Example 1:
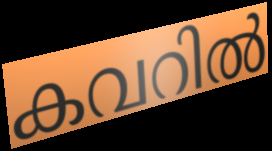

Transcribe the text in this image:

കവറിൽ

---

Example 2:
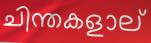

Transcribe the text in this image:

ചിന്തകളാല്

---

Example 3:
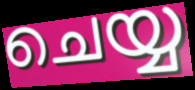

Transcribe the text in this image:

ചെയ്യ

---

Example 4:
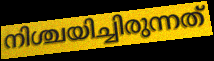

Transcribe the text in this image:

നിശ്ചയിച്ചിരുന്നത്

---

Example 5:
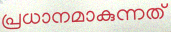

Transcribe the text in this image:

പ്രധാനമാകുന്നത്